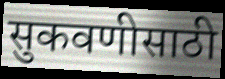
सुकवणीसाठी